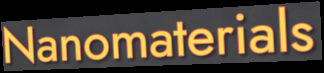
Nanomaterials